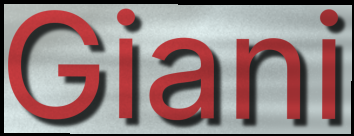
Giani